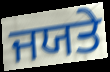
ਜਯਤੇ